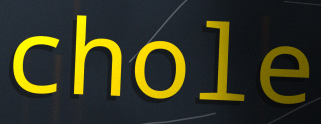
chole